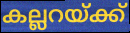
കല്ലറയ്ക്ക്